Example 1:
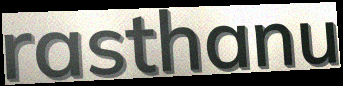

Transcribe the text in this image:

rasthanu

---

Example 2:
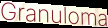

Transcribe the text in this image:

Granuloma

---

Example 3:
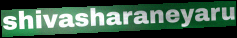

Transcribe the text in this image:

shivasharaneyaru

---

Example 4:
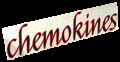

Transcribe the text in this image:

chemokines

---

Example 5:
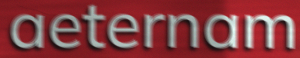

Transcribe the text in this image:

aeternam